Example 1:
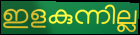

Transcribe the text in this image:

ഇളകുന്നില്ല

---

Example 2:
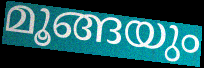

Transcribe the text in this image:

മൂങ്ങയും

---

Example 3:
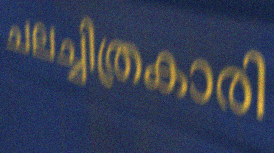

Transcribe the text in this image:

ചലച്ചിത്രകാരി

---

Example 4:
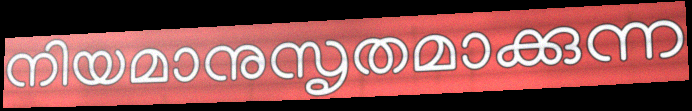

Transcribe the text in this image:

നിയമാനുസൃതമാക്കുന്ന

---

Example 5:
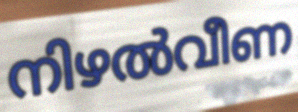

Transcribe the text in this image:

നിഴൽവീണ